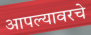
आपल्यावरचे